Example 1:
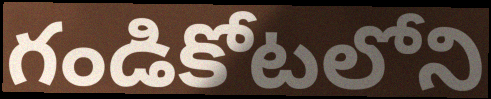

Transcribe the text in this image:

గండికోటలోని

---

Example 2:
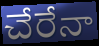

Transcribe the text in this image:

చేరేనా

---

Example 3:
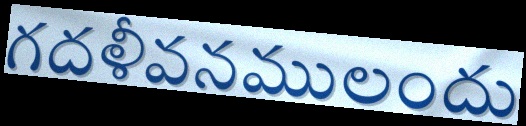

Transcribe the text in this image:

గదళీవనములందు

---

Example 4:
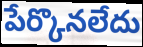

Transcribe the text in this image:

పేర్కొనలేదు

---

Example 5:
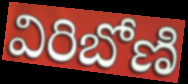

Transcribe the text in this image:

విరిబోణి